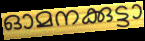
ഓമനക്കുട്ടാ